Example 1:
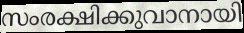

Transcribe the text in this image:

സംരക്ഷിക്കുവാനായി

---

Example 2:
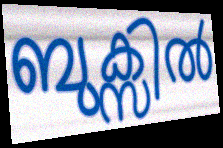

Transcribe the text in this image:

ബുക്സിൽ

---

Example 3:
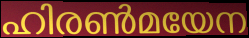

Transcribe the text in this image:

ഹിരൺമയേന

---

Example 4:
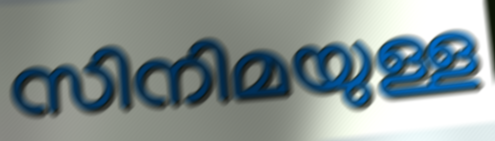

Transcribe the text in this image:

സിനിമയുള്ള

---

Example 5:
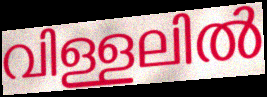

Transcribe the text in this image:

വിള്ളലിൽ